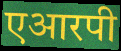
एआरपी